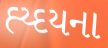
હ્ય્દયના